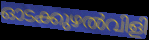
ഓടക്കുഴൽവിളി